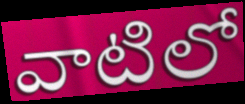
వాటిలో